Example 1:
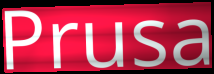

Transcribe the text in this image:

Prusa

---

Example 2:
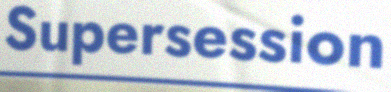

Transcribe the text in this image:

Supersession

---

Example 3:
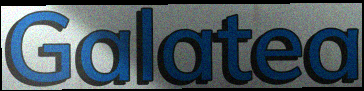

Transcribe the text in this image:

Galatea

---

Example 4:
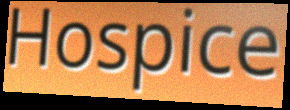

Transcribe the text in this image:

Hospice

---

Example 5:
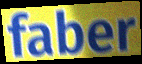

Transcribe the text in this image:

faber